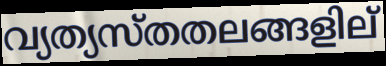
വ്യത്യസ്തതലങ്ങളില്